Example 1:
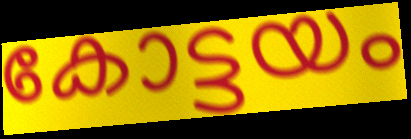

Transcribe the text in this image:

കോട്ടയം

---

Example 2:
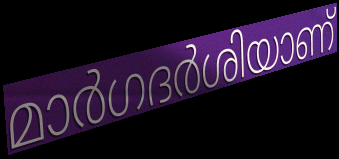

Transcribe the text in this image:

മാർഗദർശിയാണ്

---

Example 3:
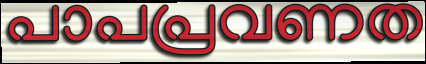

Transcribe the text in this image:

പാപപ്രവണത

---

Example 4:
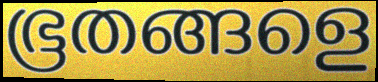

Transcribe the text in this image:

ഭൂതങ്ങളെ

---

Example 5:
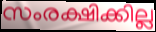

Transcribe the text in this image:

സംരക്ഷിക്കില്ല